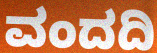
ವಂದದಿ